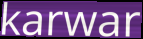
karwar